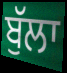
ਬੁੱਲਾ